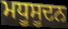
ਮਧੂਸੂਦਨ